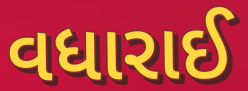
વધારાઈ